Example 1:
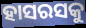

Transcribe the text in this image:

ହାସରସକୁ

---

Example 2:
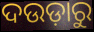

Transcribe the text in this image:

ଦଉଡ଼ାରୁ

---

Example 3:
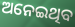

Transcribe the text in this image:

ଅନେଇଥିବ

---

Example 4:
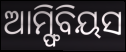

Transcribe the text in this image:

ଆମ୍ଫିବିୟସ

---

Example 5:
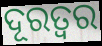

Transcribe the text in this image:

ଦୂରତ୍ଵର